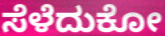
ಸೆಳೆದುಕೋ